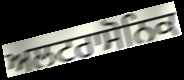
ਅਲਟਰਾਸੋਨਿਕ